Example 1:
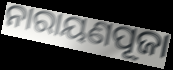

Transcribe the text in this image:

ନାରାୟଣପୂଜା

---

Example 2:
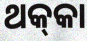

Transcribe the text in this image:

ଥକ୍‌କା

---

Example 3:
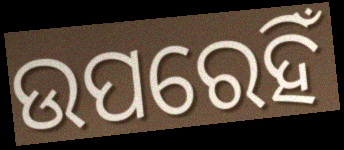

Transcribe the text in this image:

ଉପରେହିଁ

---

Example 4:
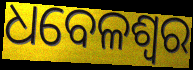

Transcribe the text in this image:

ଧବେଳଶ୍ୱର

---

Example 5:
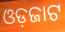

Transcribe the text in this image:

ଓଡ଼ଜାଟ